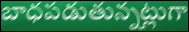
బాధపడుతున్నట్లుగా